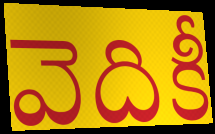
వెదికీ